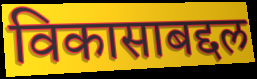
विकासाबद्दल